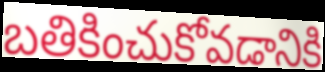
బతికించుకోవడానికి